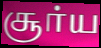
சூர்ய